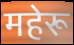
महेरू